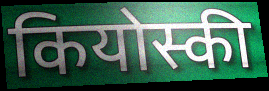
कियोस्की